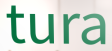
tura